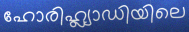
ഹോരിഹ്ല്യാഡിയിലെ